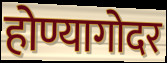
होण्यागोदर